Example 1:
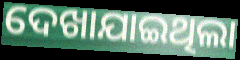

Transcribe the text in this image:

ଦେଖାଯାଇଥିଲା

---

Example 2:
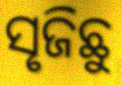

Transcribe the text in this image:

ସୃଜିଛୁ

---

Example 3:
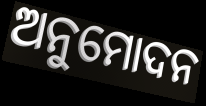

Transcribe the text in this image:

ଅନୁମୋଦନ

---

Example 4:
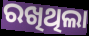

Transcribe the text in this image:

ରଖିଥିଲା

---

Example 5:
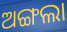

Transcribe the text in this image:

ଅଙ୍ଗଲା